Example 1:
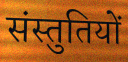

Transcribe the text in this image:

संस्तुतियों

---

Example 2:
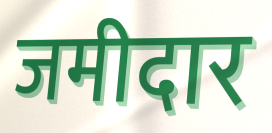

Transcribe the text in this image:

जमीदार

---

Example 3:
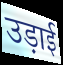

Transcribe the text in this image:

उड़ाई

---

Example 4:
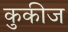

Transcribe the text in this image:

कुकीज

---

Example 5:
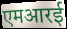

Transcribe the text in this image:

एमआरई